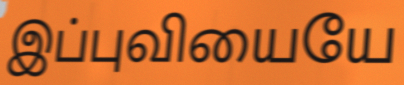
இப்புவியையே